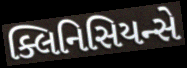
ક્લિનિસિયન્સે